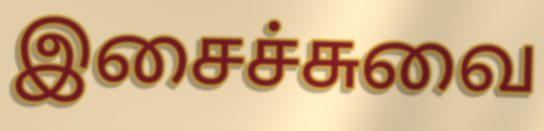
இசைச்சுவை